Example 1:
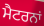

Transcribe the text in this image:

ਮੈਟਰਨਾਂ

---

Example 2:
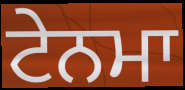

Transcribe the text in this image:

ਟੇਨਮਾ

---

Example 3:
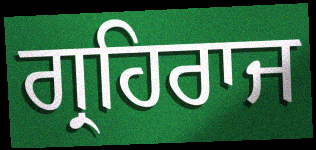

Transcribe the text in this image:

ਗ੍ਰਹਿਰਾਜ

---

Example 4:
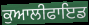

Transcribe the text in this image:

ਕੁਆਲੀਫਾਇਡ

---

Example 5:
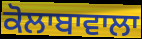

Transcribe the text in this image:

ਕੋਲਾਬਾਵਾਲਾ